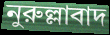
নুরুল্লাবাদ